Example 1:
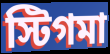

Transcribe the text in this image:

স্টিগমা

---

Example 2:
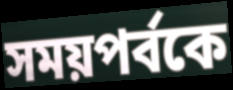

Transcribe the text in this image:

সময়পর্বকে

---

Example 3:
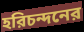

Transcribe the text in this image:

হরিচন্দনের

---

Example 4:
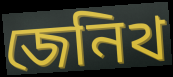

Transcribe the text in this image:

জেনিথ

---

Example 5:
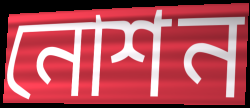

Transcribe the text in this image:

নোশন